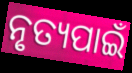
ନୃତ୍ୟପାଇଁ